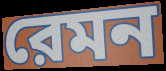
রেমন